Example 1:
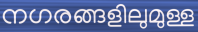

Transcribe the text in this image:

നഗരങ്ങളിലുമുള്ള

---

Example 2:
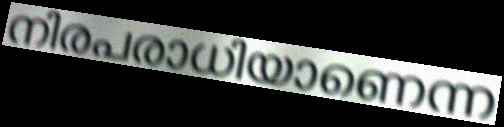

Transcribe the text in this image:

നിരപരാധിയാണെന്ന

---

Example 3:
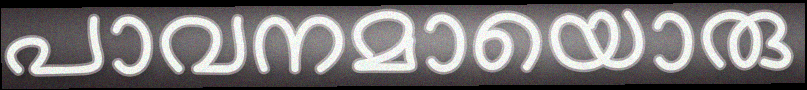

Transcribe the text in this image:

പാവനമായൊരു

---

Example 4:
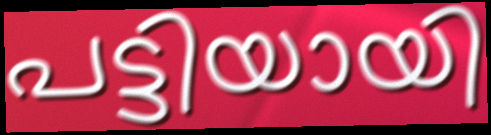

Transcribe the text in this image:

പട്ടിയായി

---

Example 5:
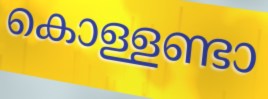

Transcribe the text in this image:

കൊള്ളണ്ടാ